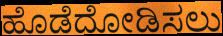
ಹೊಡೆದೋಡಿಸಲು